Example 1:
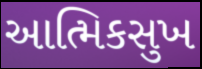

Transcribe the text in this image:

આત્મિકસુખ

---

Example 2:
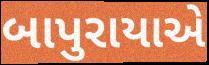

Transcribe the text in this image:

બાપુરાયાએ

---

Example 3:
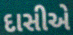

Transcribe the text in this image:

દાસીએ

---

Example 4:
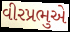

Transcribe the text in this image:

વીરપ્રભુએ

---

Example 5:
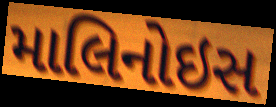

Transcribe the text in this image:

માલિનોઇસ